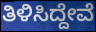
ತಿಳಿಸಿದ್ದೇವೆ